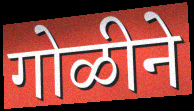
गोळीने